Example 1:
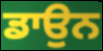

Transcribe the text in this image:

ਡਾਉਨ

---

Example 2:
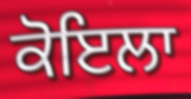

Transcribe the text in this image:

ਕੋਇਲਾ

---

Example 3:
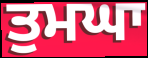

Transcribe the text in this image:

ਤੁਮਘਾ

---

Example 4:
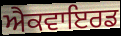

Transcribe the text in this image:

ਐਕਵਾਇਰਡ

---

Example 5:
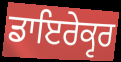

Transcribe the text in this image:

ਡਾਇਰੇਕ੍ਟਰ